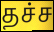
தச்ச